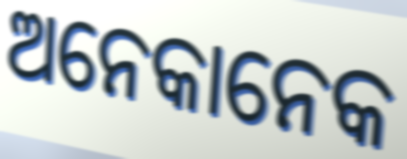
ଅନେକାନେକ